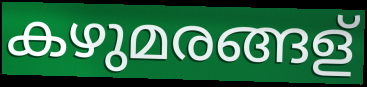
കഴുമരങ്ങള്